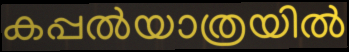
കപ്പൽയാത്രയിൽ